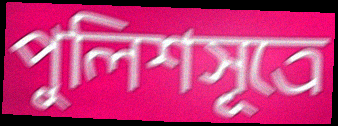
পুলিশসূত্রে